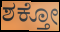
ಶಕ್ತೋ